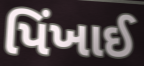
પિંખાઈ